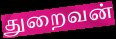
துறைவன்